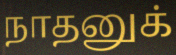
நாதனுக்